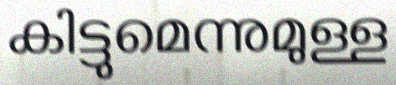
കിട്ടുമെന്നുമുള്ള